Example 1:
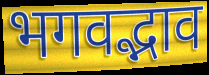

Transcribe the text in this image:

भगवद्भाव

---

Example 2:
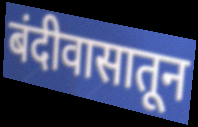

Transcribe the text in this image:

बंदीवासातून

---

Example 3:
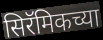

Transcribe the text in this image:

सिरॅमिकच्या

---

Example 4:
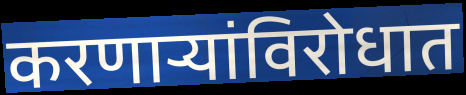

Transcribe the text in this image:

करणाऱ्यांविरोधात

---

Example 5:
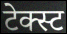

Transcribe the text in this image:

टेक्स्ट